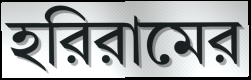
হরিরামের